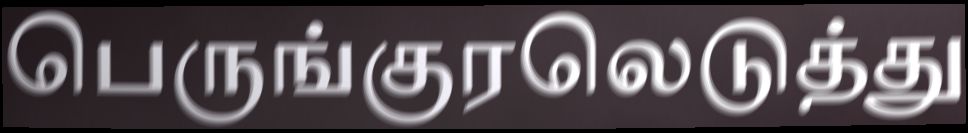
பெருங்குரலெடுத்து